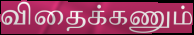
விதைக்கணும்